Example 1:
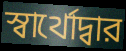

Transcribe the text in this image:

স্বার্থোদ্বার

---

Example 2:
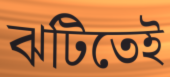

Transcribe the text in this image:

ঝটিতেই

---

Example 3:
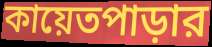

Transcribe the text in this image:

কায়েতপাড়ার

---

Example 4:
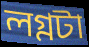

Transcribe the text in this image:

লগ্নটা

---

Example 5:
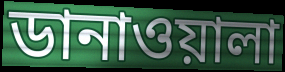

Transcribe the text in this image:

ডানাওয়ালা